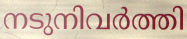
നടുനിവർത്തി